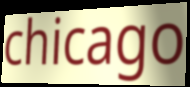
chicago